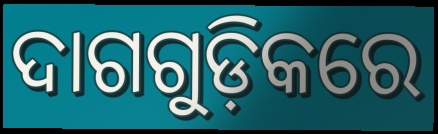
ଦାଗଗୁଡ଼ିକରେ